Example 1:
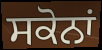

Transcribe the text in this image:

ਸਕੋਨਾਂ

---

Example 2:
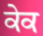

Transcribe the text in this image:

ਕੇਕ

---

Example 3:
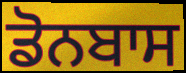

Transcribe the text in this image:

ਡੋਨਬਾਸ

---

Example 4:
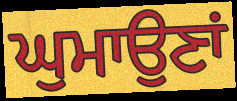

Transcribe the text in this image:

ਘੁਮਾਉਣਾਂ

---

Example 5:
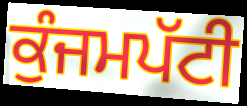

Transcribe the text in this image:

ਕੁੰਜਮਪੱਟੀ